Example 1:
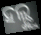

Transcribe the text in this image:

ହଲ୍ଙ୍କୁ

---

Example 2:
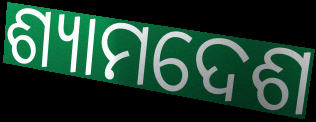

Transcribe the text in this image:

ଶ୍ୟାମଦେଶ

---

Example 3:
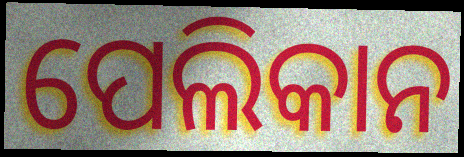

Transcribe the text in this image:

ପେଲିକାନ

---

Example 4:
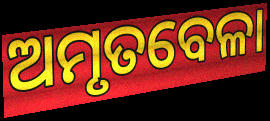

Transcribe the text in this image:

ଅମୃତବେଳା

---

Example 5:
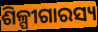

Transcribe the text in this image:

ଶିଳ୍ପୀଗାରସ୍ୟ